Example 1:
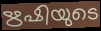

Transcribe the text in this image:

ഋഷിയുടെ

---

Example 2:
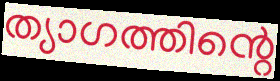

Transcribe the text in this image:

ത്യാഗത്തിന്റെ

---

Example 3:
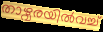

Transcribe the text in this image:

താഴ്വരയിൽവച്ച്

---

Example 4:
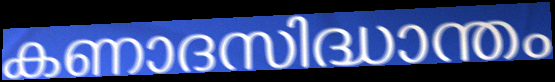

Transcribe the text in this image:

കണാദസിദ്ധാന്തം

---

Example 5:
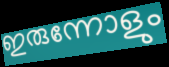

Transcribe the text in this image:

ഇരുന്നോളും